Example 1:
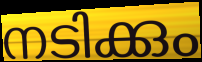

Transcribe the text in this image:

നടിക്കും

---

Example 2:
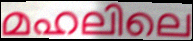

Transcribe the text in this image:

മഹലിലെ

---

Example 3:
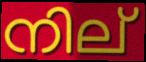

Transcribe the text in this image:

നില്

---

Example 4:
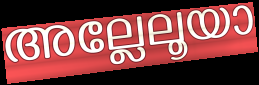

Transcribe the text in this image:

അല്ലേലൂയാ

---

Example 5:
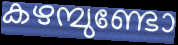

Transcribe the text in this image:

കഴമ്പുണ്ടോ